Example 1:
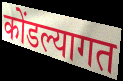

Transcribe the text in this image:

कोंडल्यागत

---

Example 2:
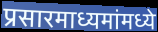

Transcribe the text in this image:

प्रसारमाध्यमांमध्ये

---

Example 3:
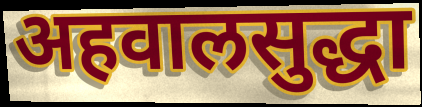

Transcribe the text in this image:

अहवालसुद्धा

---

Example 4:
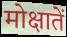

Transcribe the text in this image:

मोक्षातें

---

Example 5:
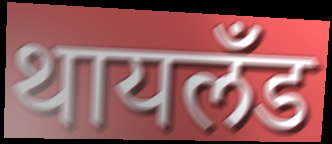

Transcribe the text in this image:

थायलँड